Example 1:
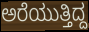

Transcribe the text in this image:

ಅರೆಯುತ್ತಿದ್ದ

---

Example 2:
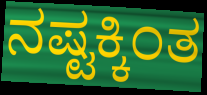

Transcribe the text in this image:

ನಷ್ಟಕ್ಕಿಂತ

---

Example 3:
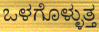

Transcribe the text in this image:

ಒಳಗೊಳ್ಳುತ್ತ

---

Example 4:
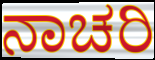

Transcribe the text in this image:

ನಾಚರಿ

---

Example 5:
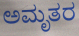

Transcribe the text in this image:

ಅಮೃತರ